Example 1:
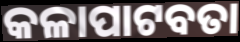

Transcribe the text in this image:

କଳାପାଟବତା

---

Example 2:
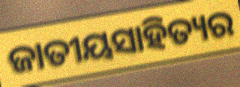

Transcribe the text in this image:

ଜାତୀୟସାହିତ୍ୟର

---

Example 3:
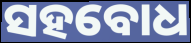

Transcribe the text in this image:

ସହବୋଧ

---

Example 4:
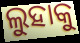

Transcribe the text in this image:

ଲୁହାକୁ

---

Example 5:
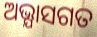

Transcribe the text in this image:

ଅଭ୍ଯାସଗତ